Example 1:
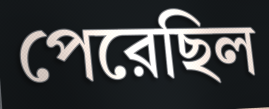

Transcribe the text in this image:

পেরেছিল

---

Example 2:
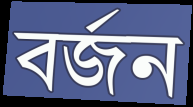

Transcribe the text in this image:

বর্জন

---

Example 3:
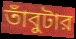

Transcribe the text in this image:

তাঁবুটার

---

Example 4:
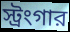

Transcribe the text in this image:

স্ট্রংগার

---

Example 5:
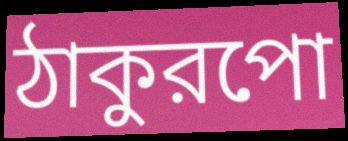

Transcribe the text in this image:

ঠাকুরপো